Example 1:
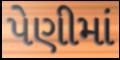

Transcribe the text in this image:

પેણીમાં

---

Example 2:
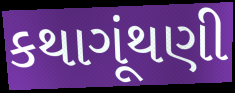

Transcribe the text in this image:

કથાગૂંથણી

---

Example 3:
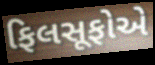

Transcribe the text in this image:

ફિલસૂફોએ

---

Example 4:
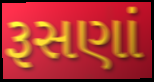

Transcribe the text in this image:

રૂસણાં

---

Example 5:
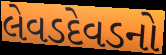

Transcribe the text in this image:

લેવડદેવડનો